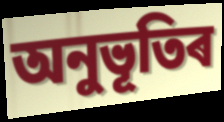
অনুভূতিৰ